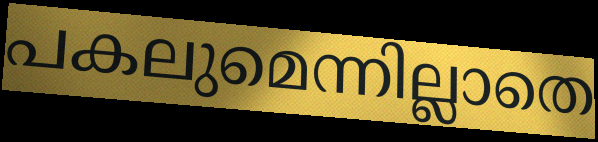
പകലുമെന്നില്ലാതെ